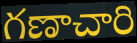
గణాచారి